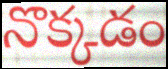
నొక్కడం